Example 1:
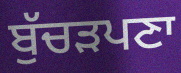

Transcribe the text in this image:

ਬੁੱਚੜਪਣਾ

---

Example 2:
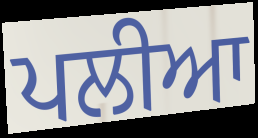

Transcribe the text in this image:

ਪਲੀਆ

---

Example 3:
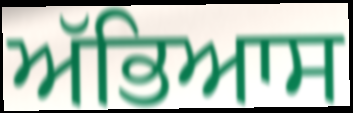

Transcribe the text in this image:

ਅੱਭਿਆਸ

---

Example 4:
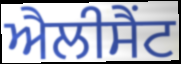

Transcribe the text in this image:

ਐਲੀਸੈਂਟ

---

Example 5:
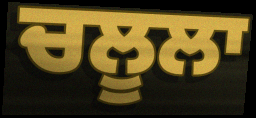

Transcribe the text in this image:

ਚਲੂਲਾ